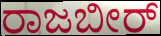
ರಾಜಬೀರ್